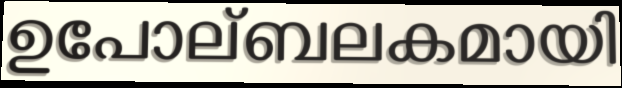
ഉപോല്ബലകമായി